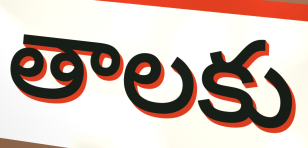
తాలకు